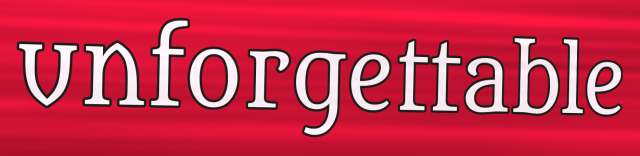
unforgettable